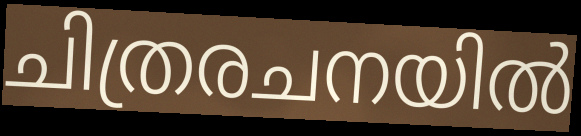
ചിത്രരചനയിൽ